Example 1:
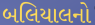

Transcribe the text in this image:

બલિયાલનો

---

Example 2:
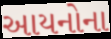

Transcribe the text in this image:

આયનોના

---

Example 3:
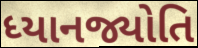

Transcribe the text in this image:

ધ્યાનજ્યોતિ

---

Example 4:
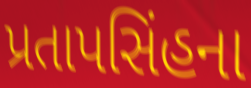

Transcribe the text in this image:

પ્રતાપસિંહના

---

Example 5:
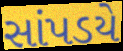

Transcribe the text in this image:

સાંપડયે